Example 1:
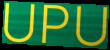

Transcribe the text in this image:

UPU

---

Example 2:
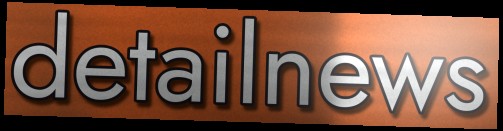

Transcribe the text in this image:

detailnews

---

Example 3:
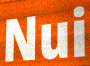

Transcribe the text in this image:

Nui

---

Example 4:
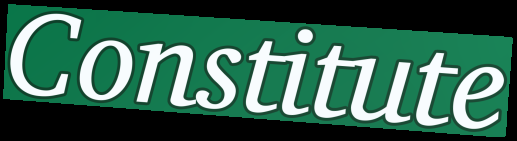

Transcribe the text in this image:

Constitute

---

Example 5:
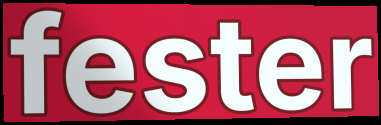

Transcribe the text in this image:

fester